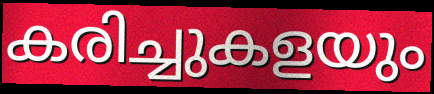
കരിച്ചുകളയും